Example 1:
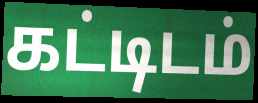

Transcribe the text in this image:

கட்டிடம்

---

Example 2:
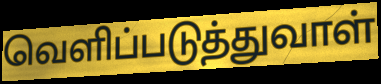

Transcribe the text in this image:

வெளிப்படுத்துவாள்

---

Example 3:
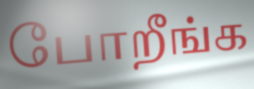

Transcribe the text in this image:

போறீங்க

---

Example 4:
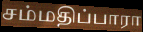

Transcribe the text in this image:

சம்மதிப்பாரா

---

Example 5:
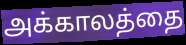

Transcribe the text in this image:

அக்காலத்தை